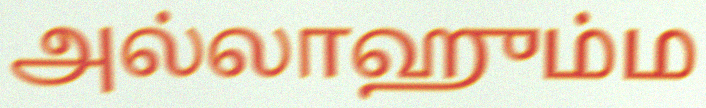
அல்லாஹும்ம